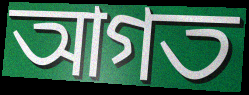
আগত